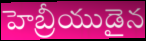
హెబ్రీయుడైన